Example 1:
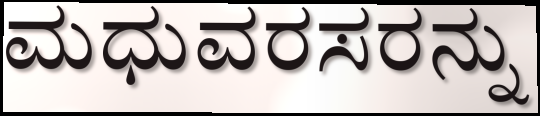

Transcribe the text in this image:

ಮಧುವರಸರನ್ನು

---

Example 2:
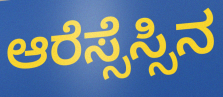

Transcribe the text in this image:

ಆರೆಸ್ಸೆಸ್ಸಿನ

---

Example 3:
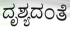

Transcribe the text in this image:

ದೃಶ್ಯದಂತೆ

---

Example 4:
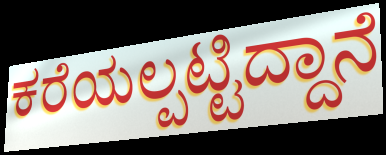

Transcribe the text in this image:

ಕರೆಯಲ್ಪಟ್ಟಿದ್ದಾನೆ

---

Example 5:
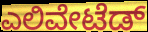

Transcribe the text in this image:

ಎಲಿವೇಟೆಡ್